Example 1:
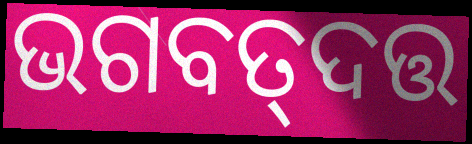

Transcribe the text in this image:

ଭଗବତ୍‌ଦତ୍ତ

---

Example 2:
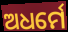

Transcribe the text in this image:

ଅଧର୍ମେ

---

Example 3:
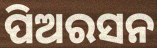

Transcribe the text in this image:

ପିଅରସନ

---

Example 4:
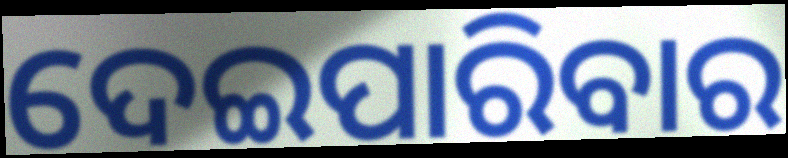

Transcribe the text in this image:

ଦେଇପାରିବାର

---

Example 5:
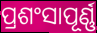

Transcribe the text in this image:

ପ୍ରଶଂସାପୂର୍ଣ୍ଣ